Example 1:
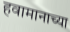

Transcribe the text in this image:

हवामानाच्या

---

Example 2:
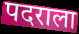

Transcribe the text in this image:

पदराला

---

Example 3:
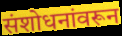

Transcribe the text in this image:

संशोधनांवरून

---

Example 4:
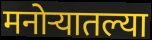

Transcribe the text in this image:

मनोर्‍यातल्या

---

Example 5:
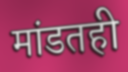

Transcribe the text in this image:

मांडतही